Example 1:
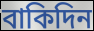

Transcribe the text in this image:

বাকিদিন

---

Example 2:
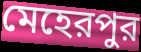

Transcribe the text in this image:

মেহেরপুর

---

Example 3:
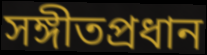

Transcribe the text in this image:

সঙ্গীতপ্রধান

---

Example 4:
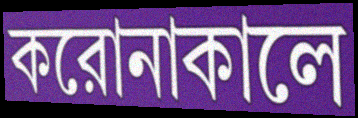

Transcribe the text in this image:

করোনাকালে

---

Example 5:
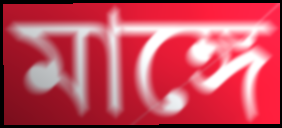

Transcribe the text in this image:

মাঙ্গে